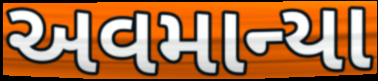
અવમાન્યા